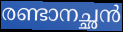
രണ്ടാനച്ഛൻ